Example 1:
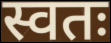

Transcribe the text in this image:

स्वतः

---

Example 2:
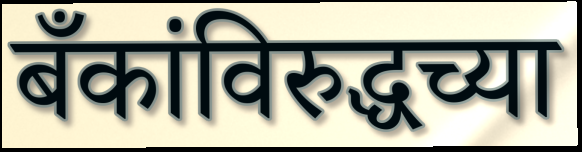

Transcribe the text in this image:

बँकांविरुद्धच्या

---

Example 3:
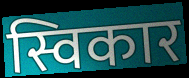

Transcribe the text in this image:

स्विकार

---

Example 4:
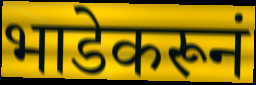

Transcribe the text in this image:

भाडेकरूनं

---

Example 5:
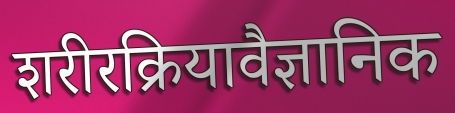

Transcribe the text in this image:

शरीरक्रियावैज्ञानिक